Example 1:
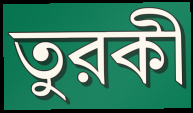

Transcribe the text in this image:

তুরকী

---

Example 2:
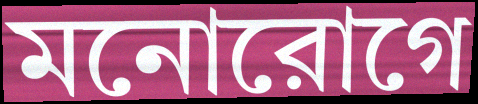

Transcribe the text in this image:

মনোরোগে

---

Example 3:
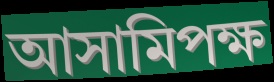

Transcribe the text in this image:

আসামিপক্ষ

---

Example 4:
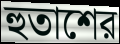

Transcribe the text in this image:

হুতাশের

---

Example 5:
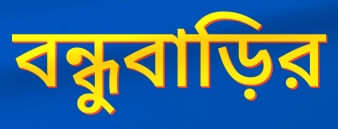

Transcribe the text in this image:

বন্ধুবাড়ির